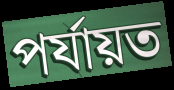
পৰ্যায়ত